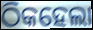
ଠିକହେଲା